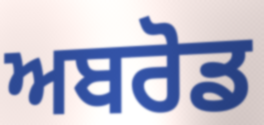
ਅਬਰੋਡ